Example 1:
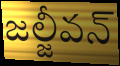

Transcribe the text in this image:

జల్జీవన్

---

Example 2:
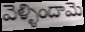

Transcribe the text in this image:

వెళ్ళిందామె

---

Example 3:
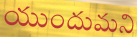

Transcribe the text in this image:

యుందుమని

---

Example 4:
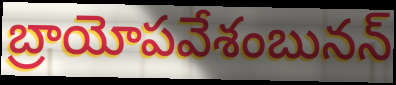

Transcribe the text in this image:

బ్రాయోపవేశంబునన్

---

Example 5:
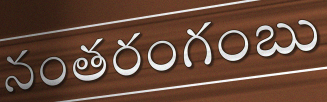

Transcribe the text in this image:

నంతరంగంబు